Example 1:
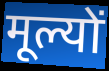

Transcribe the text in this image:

मूल्यों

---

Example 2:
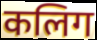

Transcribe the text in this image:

कलिग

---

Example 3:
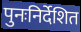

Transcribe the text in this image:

पुनःनिर्देशित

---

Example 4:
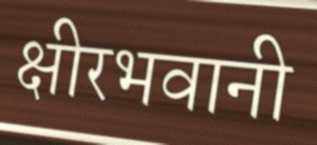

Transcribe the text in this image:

क्षीरभवानी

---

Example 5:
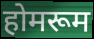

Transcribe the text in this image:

होमरूम